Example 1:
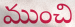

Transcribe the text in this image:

ముంచి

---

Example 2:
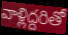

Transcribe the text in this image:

వాళ్లిద్దరితో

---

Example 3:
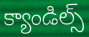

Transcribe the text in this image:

క్యాండిల్స్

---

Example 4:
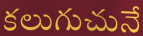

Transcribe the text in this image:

కలుగుచునే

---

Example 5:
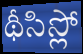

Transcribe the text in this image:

థీసిస్లో